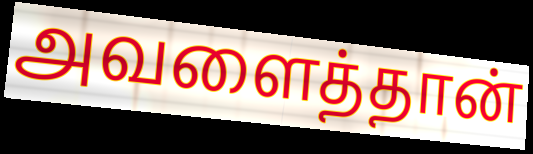
அவளைத்தான்